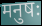
मनुषः